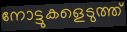
നോട്ടുകളെടുത്ത്